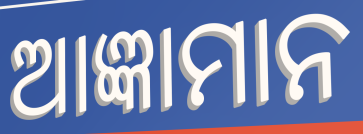
ଆଜ୍ଞାମାନ